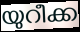
യുറീക്ക